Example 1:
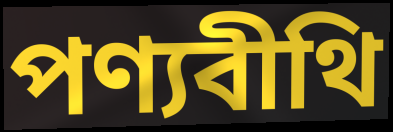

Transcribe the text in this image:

পণ্যবীথি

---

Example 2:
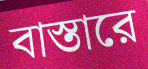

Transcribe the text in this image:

বাস্তারে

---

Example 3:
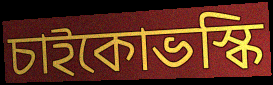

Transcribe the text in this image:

চাইকোভস্কি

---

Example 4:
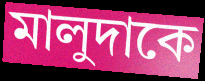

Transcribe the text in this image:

মালুদাকে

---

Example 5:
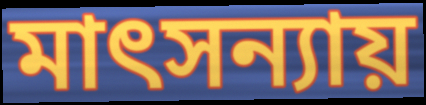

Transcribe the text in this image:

মাৎসন্যায়